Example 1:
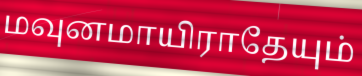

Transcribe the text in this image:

மவுனமாயிராதேயும்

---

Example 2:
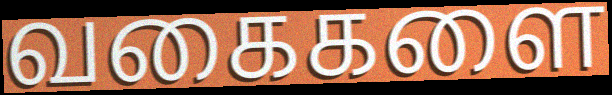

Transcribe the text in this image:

வகைகளை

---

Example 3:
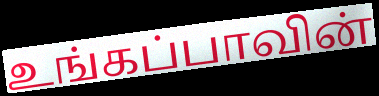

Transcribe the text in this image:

உங்கப்பாவின்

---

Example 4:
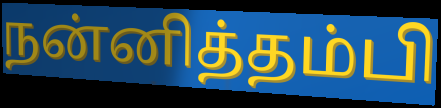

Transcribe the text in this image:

நன்னித்தம்பி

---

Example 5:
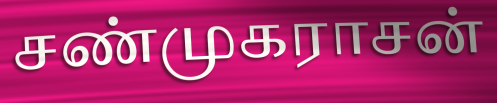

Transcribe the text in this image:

சண்முகராசன்